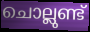
ചൊല്ലുണ്ട്